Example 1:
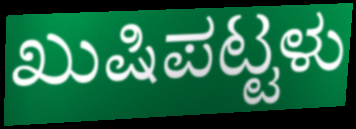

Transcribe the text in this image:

ಖುಷಿಪಟ್ಟಳು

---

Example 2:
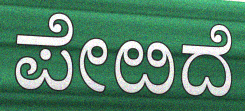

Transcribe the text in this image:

ಪೇೞದೆ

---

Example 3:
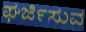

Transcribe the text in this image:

ಘರ್ಜಿಸುವ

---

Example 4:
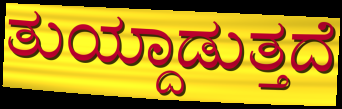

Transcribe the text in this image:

ತುಯ್ದಾಡುತ್ತದೆ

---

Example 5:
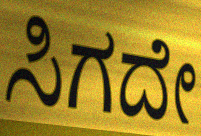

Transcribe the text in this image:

ಸಿಗದೇ